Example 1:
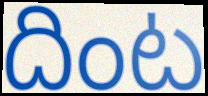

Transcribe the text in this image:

దింట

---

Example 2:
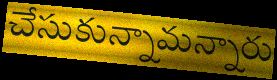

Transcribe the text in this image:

చేసుకున్నామన్నారు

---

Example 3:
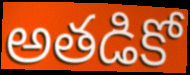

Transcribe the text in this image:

అతడికో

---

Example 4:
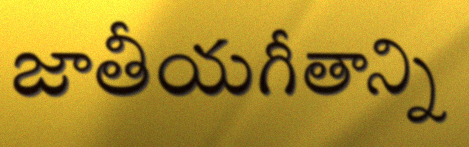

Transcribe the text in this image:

జాతీయగీతాన్ని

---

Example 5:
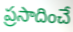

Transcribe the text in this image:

ప్రసాదించే